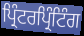
ਪ੍ਰਿੰਟਰਪ੍ਰਿੰਟਿੰਗ